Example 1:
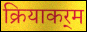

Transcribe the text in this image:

क्रियाकर्म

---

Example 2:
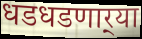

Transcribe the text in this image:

धडधडणार्या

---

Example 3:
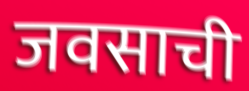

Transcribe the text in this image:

जवसाची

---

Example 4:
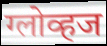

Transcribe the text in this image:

ग्लोव्हज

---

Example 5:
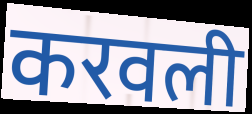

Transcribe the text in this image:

करवली